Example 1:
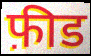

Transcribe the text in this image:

फ़ीड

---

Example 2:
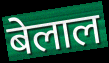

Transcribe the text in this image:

बेलाल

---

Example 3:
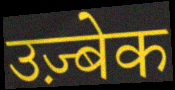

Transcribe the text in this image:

उज़्बेक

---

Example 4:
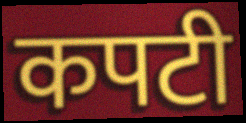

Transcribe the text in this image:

कपटी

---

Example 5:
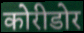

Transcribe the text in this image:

कोरीडोर